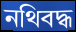
নথিবদ্ধ